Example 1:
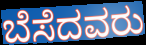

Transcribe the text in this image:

ಬೆಸೆದವರು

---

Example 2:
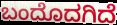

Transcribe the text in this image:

ಬಂದೊದಗಿದೆ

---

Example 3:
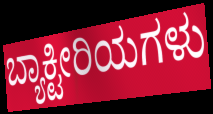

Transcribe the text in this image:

ಬ್ಯಾಕ್ಟೀರಿಯಗಳು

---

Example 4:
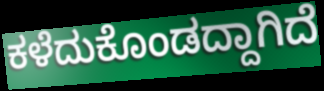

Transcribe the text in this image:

ಕಳೆದುಕೊಂಡದ್ದಾಗಿದೆ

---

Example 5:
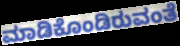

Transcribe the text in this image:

ಮಾಡಿಕೊಂಡಿರುವಂತೆ